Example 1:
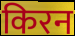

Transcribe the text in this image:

किरन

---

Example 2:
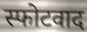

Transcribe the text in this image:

स्फोटवाद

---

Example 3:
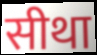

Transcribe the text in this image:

सीथा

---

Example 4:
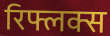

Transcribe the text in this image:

रिफ्लक्स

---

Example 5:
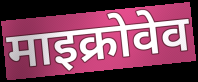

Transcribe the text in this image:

माइक्रोवेव